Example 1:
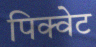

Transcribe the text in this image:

पिक्वेट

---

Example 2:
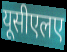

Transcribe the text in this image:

यूसीएलए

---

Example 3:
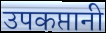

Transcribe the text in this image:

उपकप्तानी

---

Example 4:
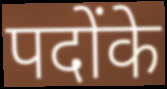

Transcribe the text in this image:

पदोंके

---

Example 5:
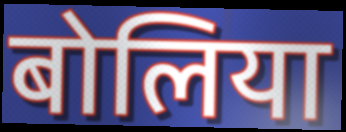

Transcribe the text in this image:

बोलिया